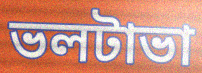
ভলটাভা